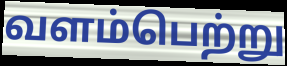
வளம்பெற்று